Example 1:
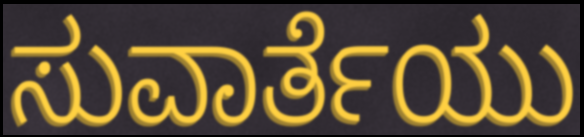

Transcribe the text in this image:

ಸುವಾರ್ತೆಯು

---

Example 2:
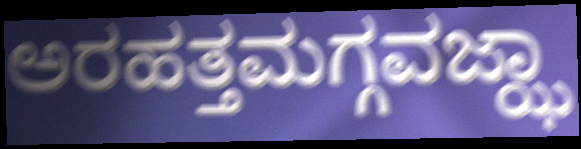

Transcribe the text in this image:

ಅರಹತ್ತಮಗ್ಗವಜ್ಝಾ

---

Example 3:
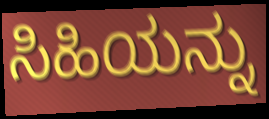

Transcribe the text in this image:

ಸಿಹಿಯನ್ನು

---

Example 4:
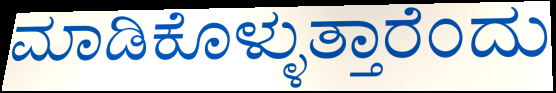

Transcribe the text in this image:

ಮಾಡಿಕೊಳ್ಳುತ್ತಾರೆಂದು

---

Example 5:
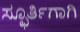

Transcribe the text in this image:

ಸ್ಫೂರ್ತಿಗಾಗಿ